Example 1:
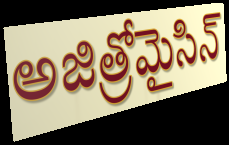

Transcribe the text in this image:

అజిత్రోమైసిన్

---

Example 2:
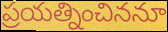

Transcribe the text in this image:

ప్రయత్నించిననూ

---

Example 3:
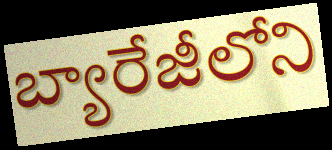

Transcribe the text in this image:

బ్యారేజీలోని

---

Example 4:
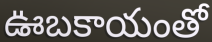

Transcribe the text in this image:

ఊబకాయంతో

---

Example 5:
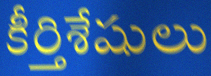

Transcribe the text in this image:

కీర్తిశేషులు